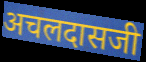
अचलदासजी